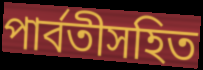
পার্বতীসহিত